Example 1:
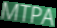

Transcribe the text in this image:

MTPA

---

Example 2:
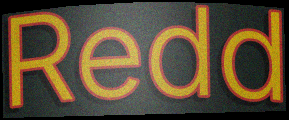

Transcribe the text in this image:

Redd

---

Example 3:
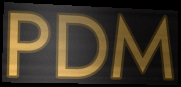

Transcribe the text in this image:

PDM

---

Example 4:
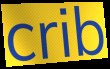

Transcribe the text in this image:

crib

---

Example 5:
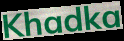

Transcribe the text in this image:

Khadka